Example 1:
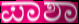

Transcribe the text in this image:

ಪಾಶಾ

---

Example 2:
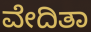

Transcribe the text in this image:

ವೇದಿತಾ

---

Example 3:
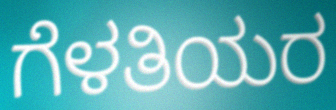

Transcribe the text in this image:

ಗೆಳತಿಯರ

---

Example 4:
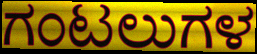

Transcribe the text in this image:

ಗಂಟಲುಗಳ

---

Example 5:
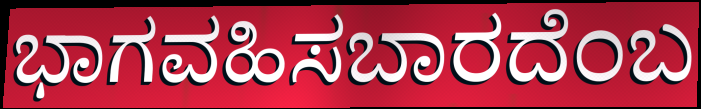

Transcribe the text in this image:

ಭಾಗವಹಿಸಬಾರದೆಂಬ